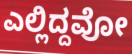
ಎಲ್ಲಿದ್ದವೋ